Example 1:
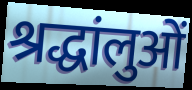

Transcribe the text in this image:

श्रद्धांलुओं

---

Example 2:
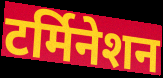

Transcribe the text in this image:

टर्मिनेशन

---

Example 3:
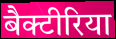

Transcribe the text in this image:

बैक्टीरिया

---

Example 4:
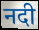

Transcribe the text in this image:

नदी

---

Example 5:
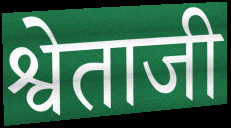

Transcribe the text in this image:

श्वेताजी